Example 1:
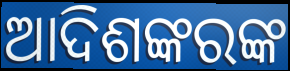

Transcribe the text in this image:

ଆଦିଶଙ୍କରଙ୍କ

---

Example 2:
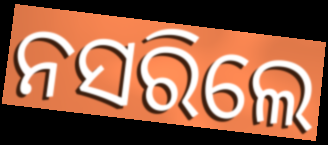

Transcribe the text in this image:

ନସରିଲେ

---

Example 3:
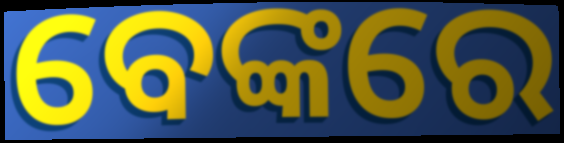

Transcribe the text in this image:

ବେଙ୍କରେ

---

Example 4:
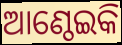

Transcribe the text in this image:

ଆଣ୍ଠେଇକି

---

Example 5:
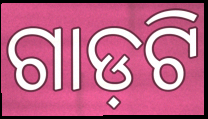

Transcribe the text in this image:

ଗାଡ଼ଟି